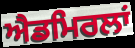
ਐਡਮਿਰਲਾਂ